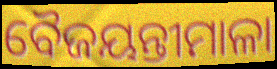
ବୈଜୟନ୍ତୀମାଳା